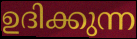
ഉദിക്കുന്ന